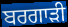
ਬਰਗਾੜੀ